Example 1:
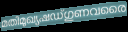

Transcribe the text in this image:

മതിമുഖ്യഷഡ്ഗുണവരൈ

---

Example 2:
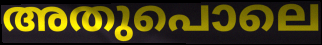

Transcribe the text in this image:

അതുപൊലെ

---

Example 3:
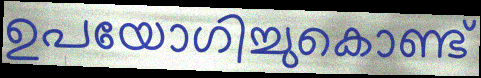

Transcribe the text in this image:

ഉപയോഗിച്ചുകൊണ്ട്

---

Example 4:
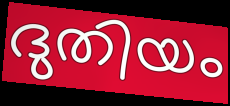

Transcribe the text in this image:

ദുതിയം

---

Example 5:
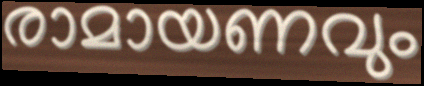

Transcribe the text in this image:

രാമായണവും